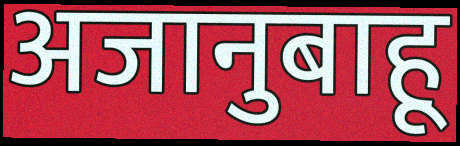
अजानुबाहू